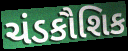
ચંડકૌશિક